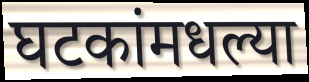
घटकांमधल्या